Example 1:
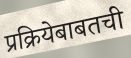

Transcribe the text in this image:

प्रक्रियेबाबतची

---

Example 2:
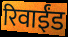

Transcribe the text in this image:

रिवाईंड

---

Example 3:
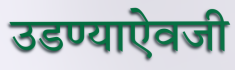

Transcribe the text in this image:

उडण्याऐवजी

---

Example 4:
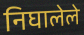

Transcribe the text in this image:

निघालेले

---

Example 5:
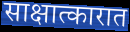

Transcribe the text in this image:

साक्षात्कारात